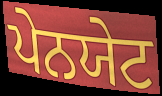
ਪੇਨਯੇਟ